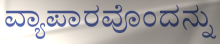
ವ್ಯಾಪಾರವೊಂದನ್ನು